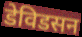
डेविडसन